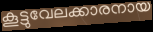
കൂട്ടുവേലക്കാരനായ